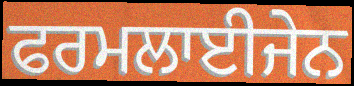
ਫਰਮਲਾਈਜੇਨ